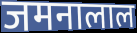
जमनालाल